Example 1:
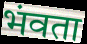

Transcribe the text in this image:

भंवता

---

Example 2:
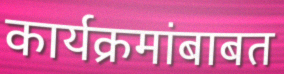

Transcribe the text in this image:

कार्यक्रमांबाबत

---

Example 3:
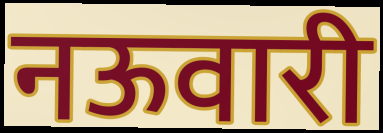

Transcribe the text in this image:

नऊवारी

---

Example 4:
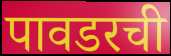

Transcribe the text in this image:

पावडरची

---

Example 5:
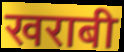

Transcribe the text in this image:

खराबी